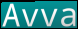
Avva